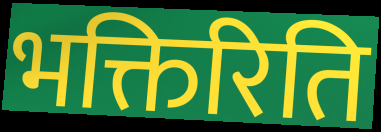
भक्तिरिति